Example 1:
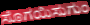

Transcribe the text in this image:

ಸೊಗಯಿಸುಗುಂ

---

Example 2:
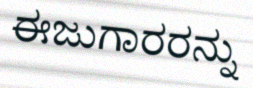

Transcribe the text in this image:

ಈಜುಗಾರರನ್ನು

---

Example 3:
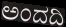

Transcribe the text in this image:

ಅಂದದಿ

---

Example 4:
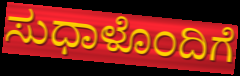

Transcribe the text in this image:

ಸುಧಾಳೊಂದಿಗೆ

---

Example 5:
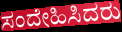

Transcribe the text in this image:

ಸಂದೇಹಿಸಿದರು